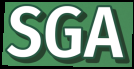
SGA